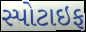
સ્પોટાઇફ